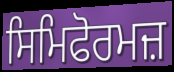
ਸਿਮਿਫੋਰਮਜ਼